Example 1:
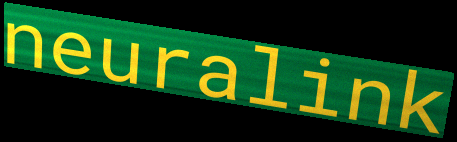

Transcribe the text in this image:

neuralink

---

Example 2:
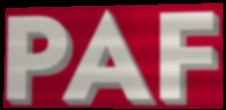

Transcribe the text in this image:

PAF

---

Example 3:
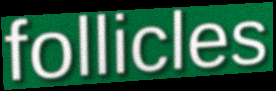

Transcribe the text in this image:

follicles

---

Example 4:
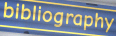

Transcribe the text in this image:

bibliography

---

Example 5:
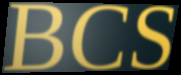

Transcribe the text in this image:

BCS